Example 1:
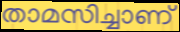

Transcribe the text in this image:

താമസിച്ചാണ്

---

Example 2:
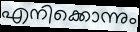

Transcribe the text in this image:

എനിക്കൊന്നും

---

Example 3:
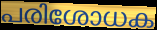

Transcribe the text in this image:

പരിശോധക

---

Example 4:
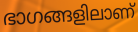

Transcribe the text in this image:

ഭാഗങ്ങളിലാണ്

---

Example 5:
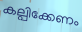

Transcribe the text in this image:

കല്പിക്കേണം